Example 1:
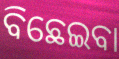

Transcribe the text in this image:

ବିଛେଇବା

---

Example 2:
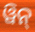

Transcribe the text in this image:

ୱିନ୍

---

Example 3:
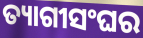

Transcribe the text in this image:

ତ୍ୟାଗୀସଂଘର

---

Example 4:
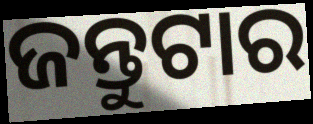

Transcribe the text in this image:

ଜନ୍ତୁଟାର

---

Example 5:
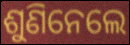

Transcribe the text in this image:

ଶୁଣିନେଲେ